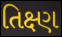
તિક્ષ્ણ